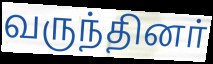
வருந்தினர்